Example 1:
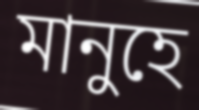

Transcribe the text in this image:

মানুহে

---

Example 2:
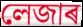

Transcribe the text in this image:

লেজাৰ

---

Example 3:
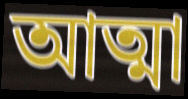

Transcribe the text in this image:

আত্মা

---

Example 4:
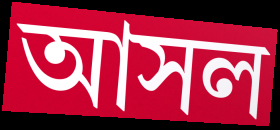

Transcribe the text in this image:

আসল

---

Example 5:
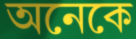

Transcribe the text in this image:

অনেকে